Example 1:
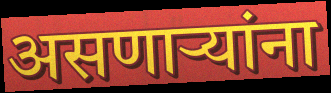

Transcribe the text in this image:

असणाऱ्यांना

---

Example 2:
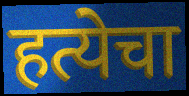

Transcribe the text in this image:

हत्येचा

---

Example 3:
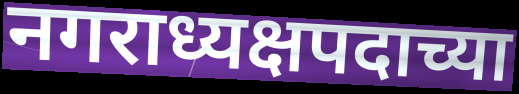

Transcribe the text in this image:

नगराध्यक्षपदाच्या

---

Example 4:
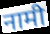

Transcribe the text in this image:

नामी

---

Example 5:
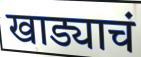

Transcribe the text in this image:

खाड्याचं